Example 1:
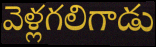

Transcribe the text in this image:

వెళ్లగలిగాడు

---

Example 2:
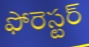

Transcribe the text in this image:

ఫోరెస్టర్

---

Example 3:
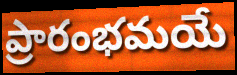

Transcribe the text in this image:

ప్రారంభమయే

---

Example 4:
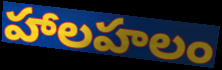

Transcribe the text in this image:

హాలహలం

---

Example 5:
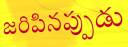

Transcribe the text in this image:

జరిపినప్పుడు